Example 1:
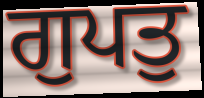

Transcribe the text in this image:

ਗੁਪਤੁ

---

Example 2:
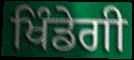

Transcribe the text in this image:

ਖਿੰਡੇਗੀ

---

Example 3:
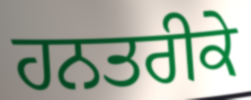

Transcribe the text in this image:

ਹਨਤਰੀਕੇ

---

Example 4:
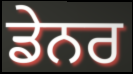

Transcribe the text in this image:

ਡੇਨਰ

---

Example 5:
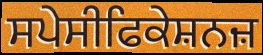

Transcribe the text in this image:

ਸਪੇਸੀਫਿਕੇਸ਼ਨਜ਼